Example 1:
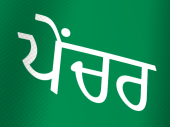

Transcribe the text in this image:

ਪੇਂਚਰ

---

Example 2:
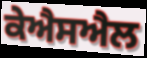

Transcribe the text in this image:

ਕੇਐਸਐਲ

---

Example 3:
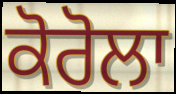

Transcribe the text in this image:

ਕੋਰੋਲਾ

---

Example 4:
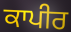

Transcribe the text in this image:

ਕਾਪੀਰ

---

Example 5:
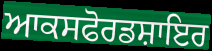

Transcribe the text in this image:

ਆਕਸਫੋਰਡਸ਼ਾਇਰ